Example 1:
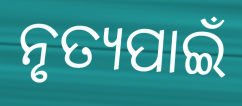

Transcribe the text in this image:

ନୃତ୍ୟପାଇଁ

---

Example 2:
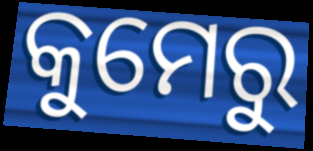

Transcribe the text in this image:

କୁମେରୁ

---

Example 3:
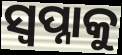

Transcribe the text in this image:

ସ୍ୱପ୍ନାକୁ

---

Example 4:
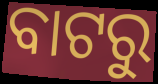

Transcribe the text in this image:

ବାଟରୁ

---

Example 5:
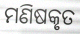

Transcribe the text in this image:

ମଣିଷକୃତ